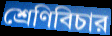
শ্রেণিবিচার